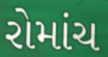
રોમાંચ